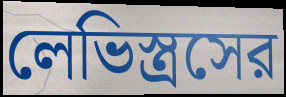
লেভিস্ত্রসের